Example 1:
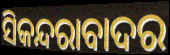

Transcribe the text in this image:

ସିକନ୍ଦରାବାଦର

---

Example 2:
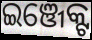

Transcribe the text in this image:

ଇଞ୍ଜେକ୍ଟ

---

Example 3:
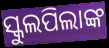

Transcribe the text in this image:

ସ୍କୁଲପିଲାଙ୍କ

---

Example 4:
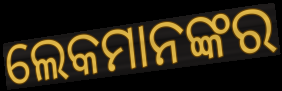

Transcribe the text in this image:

ଲେକମାନଙ୍କର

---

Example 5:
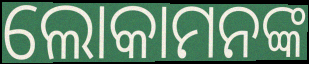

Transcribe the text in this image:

ଲୋକାମନଙ୍କ